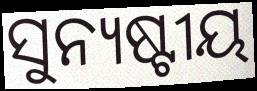
ସୁନ୍ୟଷ୍ଟୀୟ